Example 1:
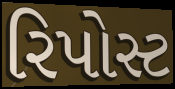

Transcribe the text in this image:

રિપોસ્ટ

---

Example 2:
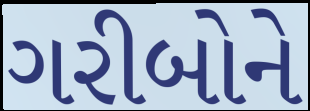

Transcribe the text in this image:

ગરીબોને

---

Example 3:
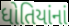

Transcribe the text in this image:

ધોતિયાંનાં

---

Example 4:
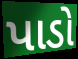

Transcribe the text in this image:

પાડો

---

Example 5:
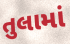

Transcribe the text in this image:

તુલામાં